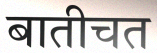
बातीचत